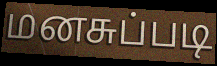
மனசுப்படி